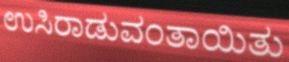
ಉಸಿರಾಡುವಂತಾಯಿತು